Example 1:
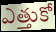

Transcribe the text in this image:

ఎత్తుకో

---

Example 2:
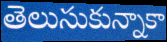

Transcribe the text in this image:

తెలుసుకున్నాకా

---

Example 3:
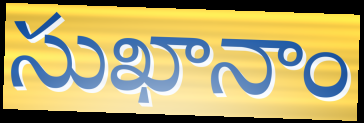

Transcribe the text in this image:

సుఖానాం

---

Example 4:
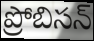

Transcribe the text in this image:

ప్రోబిసన్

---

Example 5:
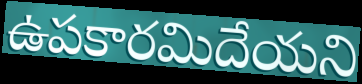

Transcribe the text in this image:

ఉపకారమిదేయని